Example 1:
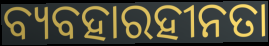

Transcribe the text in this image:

ବ୍ୟବହାରହୀନତା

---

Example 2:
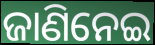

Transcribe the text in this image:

ଜାଣିନେଇ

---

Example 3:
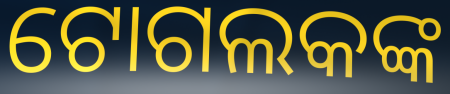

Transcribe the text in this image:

ଟୋଗଲକଙ୍କ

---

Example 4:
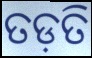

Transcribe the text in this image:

ତଡ଼ତି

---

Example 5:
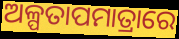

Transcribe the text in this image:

ଅଳ୍ପତାପମାତ୍ରାରେ